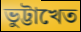
ভুট্টাখেত